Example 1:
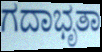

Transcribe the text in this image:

ಗದಾಭೃತಾ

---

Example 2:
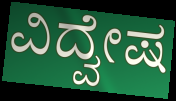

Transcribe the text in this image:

ವಿದ್ವೇಷ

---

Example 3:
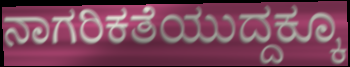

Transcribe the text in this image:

ನಾಗರಿಕತೆಯುದ್ದಕ್ಕೂ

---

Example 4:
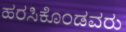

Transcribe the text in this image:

ಹರಸಿಕೊಂಡವರು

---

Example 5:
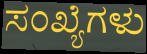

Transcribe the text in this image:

ಸಂಖ್ಯೆಗಳು